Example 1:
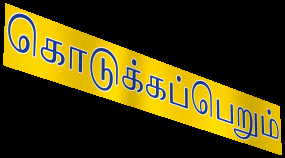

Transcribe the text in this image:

கொடுக்கப்பெறும்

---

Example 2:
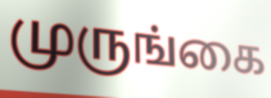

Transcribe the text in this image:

முருங்கை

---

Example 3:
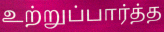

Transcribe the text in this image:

உற்றுப்பார்த்த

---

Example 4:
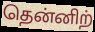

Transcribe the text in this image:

தென்னிற்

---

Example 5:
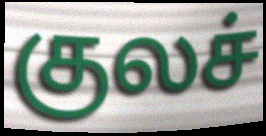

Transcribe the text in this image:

குலச்